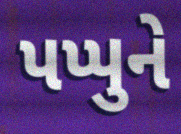
પપ્પુને